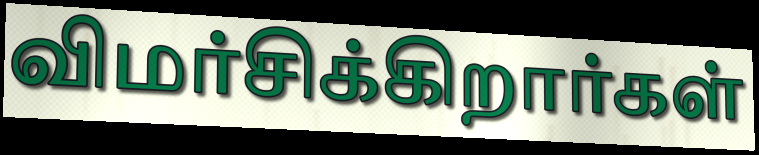
விமர்சிக்கிறார்கள்